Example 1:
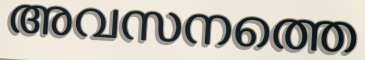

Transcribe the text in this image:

അവസനത്തെ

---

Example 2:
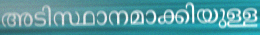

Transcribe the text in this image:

അടിസ്ഥാനമാക്കിയുള്ള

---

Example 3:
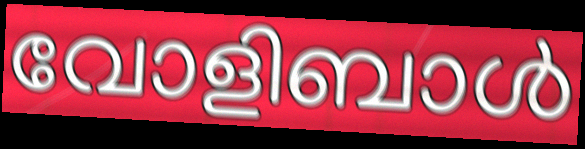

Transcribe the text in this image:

വോളിബാൾ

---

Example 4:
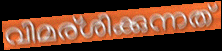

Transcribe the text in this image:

വിമര്ശിക്കുന്നത്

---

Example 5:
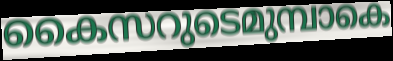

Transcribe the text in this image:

കൈസറുടെമുമ്പാകെ